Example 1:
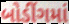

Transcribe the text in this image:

બોડીંગમાં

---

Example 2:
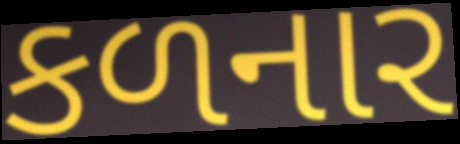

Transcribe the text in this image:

કળનાર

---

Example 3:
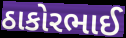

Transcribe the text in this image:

ઠાકોરભાઈ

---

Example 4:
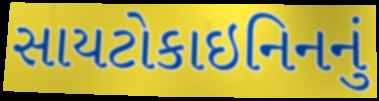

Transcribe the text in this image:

સાયટોકાઇનિનનું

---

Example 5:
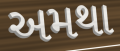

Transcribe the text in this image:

અમથા